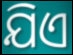
ଯିଏ